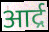
आर्द्र